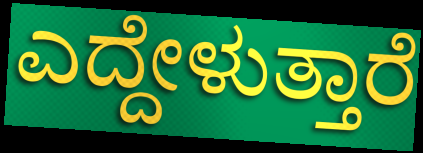
ಎದ್ದೇಳುತ್ತಾರೆ